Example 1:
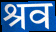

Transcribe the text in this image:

श्रव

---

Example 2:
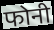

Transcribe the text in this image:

फोनी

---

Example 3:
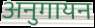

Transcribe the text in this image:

अनुगायन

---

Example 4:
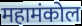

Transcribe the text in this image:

महामंकोल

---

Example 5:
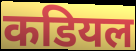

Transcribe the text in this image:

कडियल